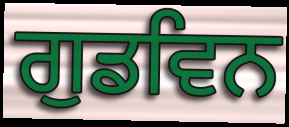
ਗੁਡਵਿਨ